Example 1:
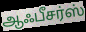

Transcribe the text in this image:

ஆஃபீசர்ஸ்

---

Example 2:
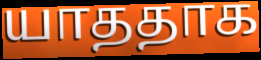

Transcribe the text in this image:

யாததாக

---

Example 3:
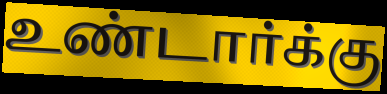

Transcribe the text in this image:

உண்டார்க்கு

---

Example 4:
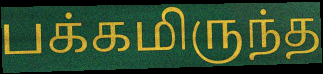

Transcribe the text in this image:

பக்கமிருந்த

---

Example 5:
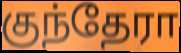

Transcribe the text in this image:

குந்தேரா